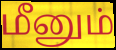
மீனும்